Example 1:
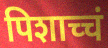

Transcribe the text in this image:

पिशाच्चं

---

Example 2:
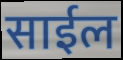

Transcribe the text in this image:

साईल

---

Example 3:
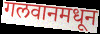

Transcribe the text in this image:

गलवानमधून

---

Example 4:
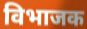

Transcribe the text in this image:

विभाजक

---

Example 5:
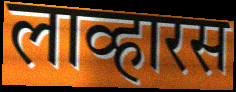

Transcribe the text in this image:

लाव्हारस